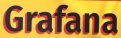
Grafana